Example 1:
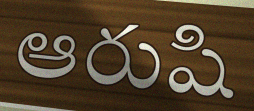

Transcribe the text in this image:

ఆరుషి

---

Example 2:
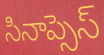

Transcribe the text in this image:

సినాప్సెస్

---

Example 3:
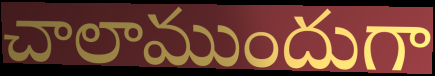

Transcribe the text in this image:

చాలాముందుగా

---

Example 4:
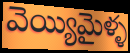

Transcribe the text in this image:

వెయ్యిమైళ్ళ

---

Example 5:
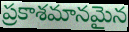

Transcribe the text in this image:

ప్రకాశమానమైన